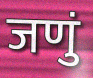
जणुं